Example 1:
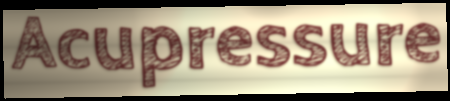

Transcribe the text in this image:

Acupressure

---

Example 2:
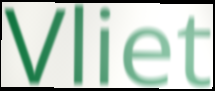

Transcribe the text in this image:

Vliet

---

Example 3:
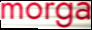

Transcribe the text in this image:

morga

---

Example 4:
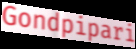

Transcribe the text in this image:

Gondpipari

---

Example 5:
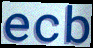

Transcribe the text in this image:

ecb